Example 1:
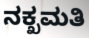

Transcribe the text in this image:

ನಕ್ಖಮತಿ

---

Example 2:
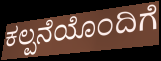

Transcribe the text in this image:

ಕಲ್ಪನೆಯೊಂದಿಗೆ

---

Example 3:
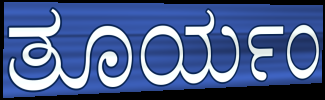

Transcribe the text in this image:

ತೂರ್ಯಂ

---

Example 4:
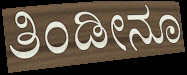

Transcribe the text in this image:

ತಿಂಡೀನೂ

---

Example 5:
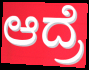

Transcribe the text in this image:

ಆದ್ರೆ